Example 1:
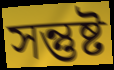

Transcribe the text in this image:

সন্তুষ্ট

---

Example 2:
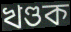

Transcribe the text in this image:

খণ্ডক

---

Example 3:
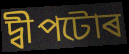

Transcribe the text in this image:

দ্বীপটোৰ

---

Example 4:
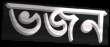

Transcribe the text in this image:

ভজন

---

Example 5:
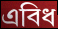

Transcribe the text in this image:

এবিধ